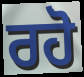
ਰਹੋ